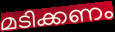
മടിക്കണം